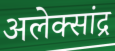
अलेक्सांद्र